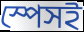
স্পেসই